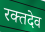
रक्तदेव